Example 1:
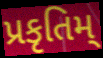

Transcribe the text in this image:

પ્રકૃતિમ્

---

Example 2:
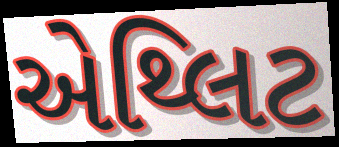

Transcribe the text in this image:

એથ્લિટ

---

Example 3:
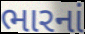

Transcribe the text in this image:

ભારનાં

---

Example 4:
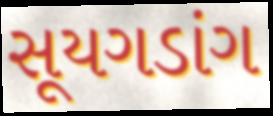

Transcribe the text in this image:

સૂયગડાંગ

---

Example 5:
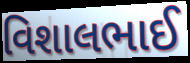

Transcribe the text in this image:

વિશાલભાઈ